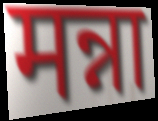
मन्ना